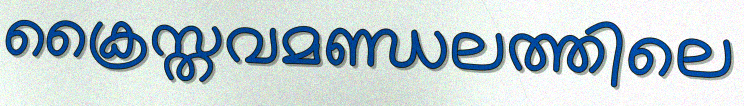
ക്രൈസ്തവമണ്ഡലത്തിലെ